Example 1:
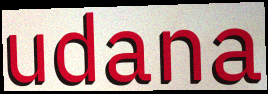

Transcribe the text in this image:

udana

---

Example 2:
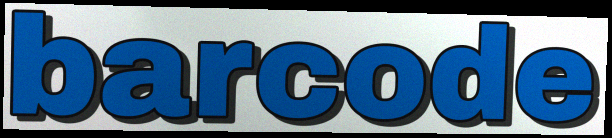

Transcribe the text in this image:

barcode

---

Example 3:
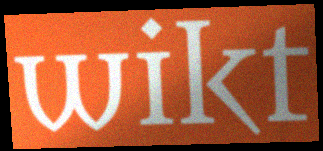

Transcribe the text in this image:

wikt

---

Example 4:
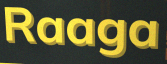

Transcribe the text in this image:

Raaga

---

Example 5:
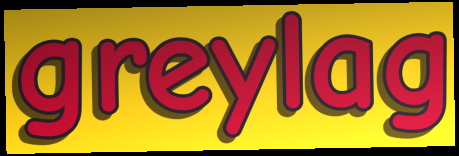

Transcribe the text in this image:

greylag